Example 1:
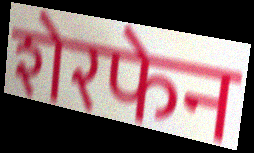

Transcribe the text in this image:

शेरफेन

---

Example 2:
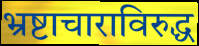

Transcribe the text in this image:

भ्रष्टाचाराविरुद्ध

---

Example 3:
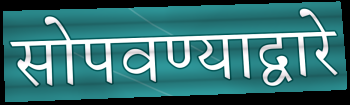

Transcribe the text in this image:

सोपवण्याद्वारे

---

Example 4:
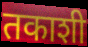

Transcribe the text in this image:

तकाशी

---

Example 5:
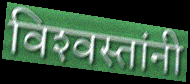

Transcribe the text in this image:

विश्वस्तांनी